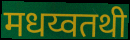
मधय्वतथी